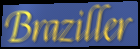
Braziller